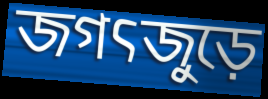
জগৎজুড়ে